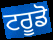
ਟਰੂਡੋ